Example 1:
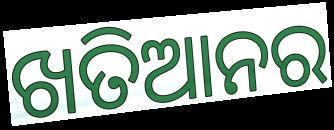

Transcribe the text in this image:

ଖତିଆନର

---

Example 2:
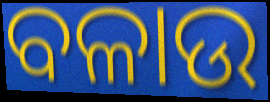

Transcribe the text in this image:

ବଳାଉ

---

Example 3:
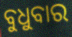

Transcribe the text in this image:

ବୁଧୁବାର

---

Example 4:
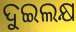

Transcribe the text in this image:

ଦୁଇଲକ୍ଷ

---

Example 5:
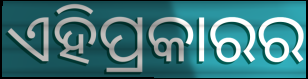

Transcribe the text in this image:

ଏହିପ୍ରକାରର